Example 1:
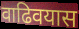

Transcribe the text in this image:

वाढिवयास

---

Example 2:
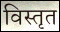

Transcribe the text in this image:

विस्तृत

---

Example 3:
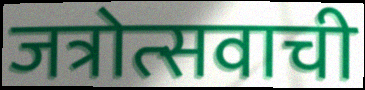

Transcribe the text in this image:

जत्रोत्सवाची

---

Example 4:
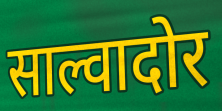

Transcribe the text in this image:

साल्वादोर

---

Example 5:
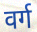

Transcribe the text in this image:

वर्ग